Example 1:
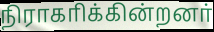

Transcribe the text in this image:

நிராகரிக்கின்றனர்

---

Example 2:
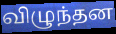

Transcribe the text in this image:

விழுந்தன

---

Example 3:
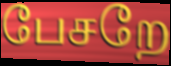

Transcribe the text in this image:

பேசறே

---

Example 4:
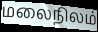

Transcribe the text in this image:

மலைநிலம்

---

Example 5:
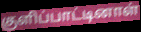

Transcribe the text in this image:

குளிப்பாட்டினாள்